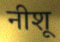
नीशू